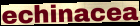
echinacea